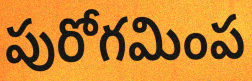
పురోగమింప